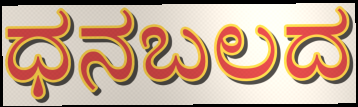
ಧನಬಲದ